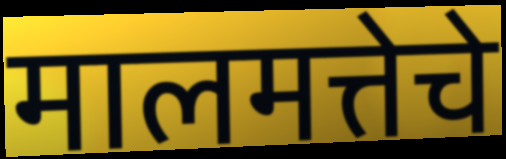
मालमत्तेचे